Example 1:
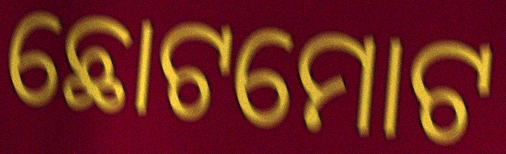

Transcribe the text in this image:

ଛୋଟମୋଟ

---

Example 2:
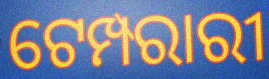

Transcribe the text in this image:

ଟେମ୍ପରାରୀ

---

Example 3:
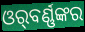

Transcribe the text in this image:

ଓର୍‌ବର୍ଣ୍ଣଙ୍କର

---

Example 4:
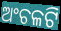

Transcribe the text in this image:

ଅଂଚଳଟି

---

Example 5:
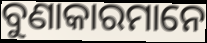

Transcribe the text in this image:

ବୁଣାକାରମାନେ